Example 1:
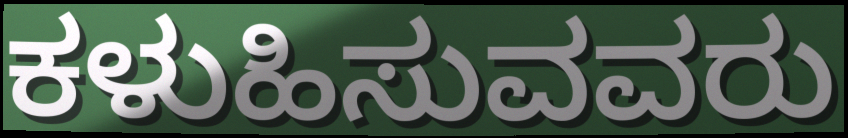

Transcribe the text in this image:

ಕಳುಹಿಸುವವರು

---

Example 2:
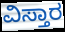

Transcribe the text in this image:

ವಿಸ್ತಾರ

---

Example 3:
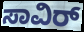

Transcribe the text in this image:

ಸಾವಿರ್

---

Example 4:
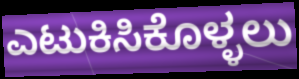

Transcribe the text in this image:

ಎಟುಕಿಸಿಕೊಳ್ಳಲು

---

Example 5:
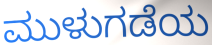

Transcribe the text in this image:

ಮುಳುಗಡೆಯ